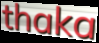
thaka